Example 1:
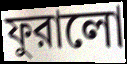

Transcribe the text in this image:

ফুরালো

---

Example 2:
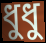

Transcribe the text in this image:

ধুধু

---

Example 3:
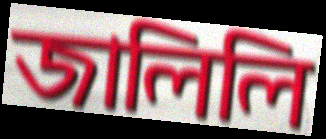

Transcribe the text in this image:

জালিলি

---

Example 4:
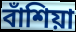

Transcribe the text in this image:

বাঁশিয়া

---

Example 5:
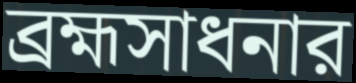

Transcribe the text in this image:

ব্রহ্মসাধনার